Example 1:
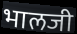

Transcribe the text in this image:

भालजी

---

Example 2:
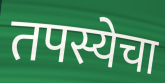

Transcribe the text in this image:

तपस्येचा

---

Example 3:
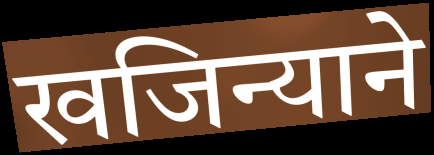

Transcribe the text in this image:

खजिन्याने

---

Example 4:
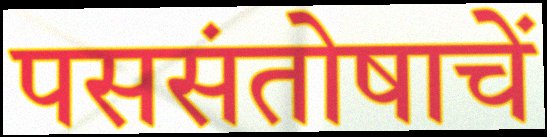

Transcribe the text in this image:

पससंतोषाचें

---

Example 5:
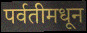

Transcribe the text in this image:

पर्वतीमधून